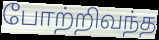
போற்றிவந்த